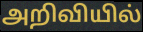
அறிவியில்